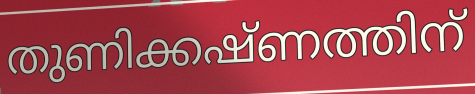
തുണിക്കഷ്ണത്തിന്